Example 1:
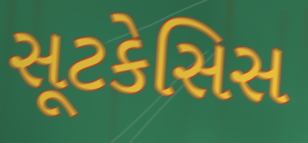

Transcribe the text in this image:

સૂટકેસિસ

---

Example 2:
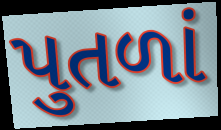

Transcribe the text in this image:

પુતળાં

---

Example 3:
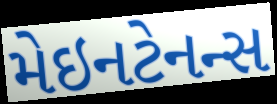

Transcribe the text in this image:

મેઇનટેનન્સ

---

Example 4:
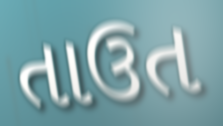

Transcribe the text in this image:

તાઉત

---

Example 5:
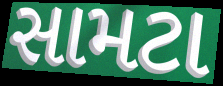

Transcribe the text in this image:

સામટા